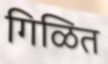
गिळित